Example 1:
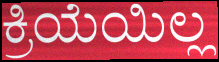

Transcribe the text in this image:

ಕ್ರಿಯೆಯಿಲ್ಲ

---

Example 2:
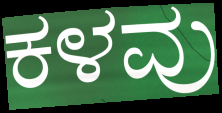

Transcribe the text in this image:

ಕಳವು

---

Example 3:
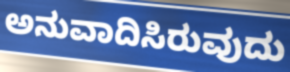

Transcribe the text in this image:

ಅನುವಾದಿಸಿರುವುದು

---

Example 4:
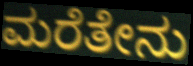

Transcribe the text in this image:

ಮರೆತೇನು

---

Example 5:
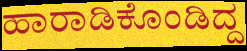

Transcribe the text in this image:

ಹಾರಾಡಿಕೊಂಡಿದ್ದ